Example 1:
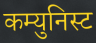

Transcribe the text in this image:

कम्युनिस्ट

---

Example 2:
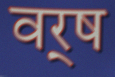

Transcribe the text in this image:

वर्ष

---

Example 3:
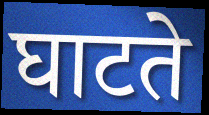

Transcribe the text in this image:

घाटते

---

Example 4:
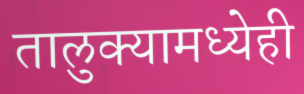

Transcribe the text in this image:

तालुक्यामध्येही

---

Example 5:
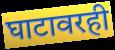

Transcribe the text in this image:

घाटावरही